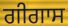
ਗੀਗਾਸ